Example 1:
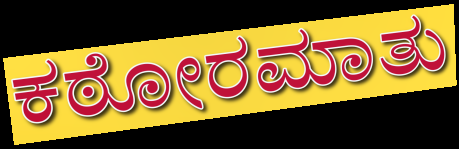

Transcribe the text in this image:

ಕಠೋರಮಾತು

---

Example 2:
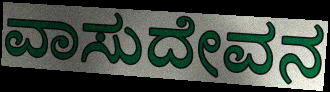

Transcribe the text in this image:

ವಾಸುದೇವನ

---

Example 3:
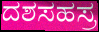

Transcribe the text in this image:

ದಶಸಹಸ್ರ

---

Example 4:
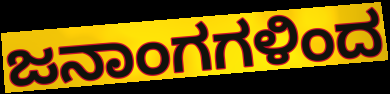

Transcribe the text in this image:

ಜನಾಂಗಗಳಿಂದ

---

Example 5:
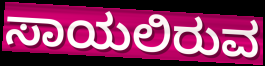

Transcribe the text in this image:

ಸಾಯಲಿರುವ